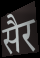
सैर